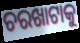
ଚରଖାଟାକୁ